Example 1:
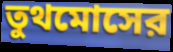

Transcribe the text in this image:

তুথমোসের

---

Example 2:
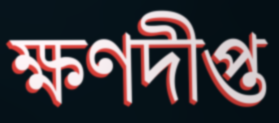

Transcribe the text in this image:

ক্ষণদীপ্ত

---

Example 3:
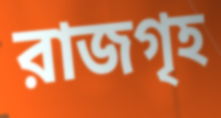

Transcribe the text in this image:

রাজগৃহ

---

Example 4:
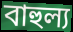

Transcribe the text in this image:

বাহুল্য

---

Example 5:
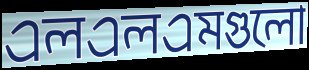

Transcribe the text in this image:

এলএলএমগুলো